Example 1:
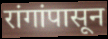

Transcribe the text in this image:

रांगांपासून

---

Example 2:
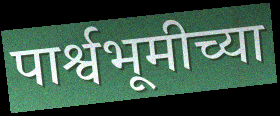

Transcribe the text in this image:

पार्श्वभूमीच्या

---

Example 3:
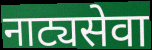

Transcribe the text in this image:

नाट्यसेवा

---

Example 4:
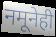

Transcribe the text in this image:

नमूनेही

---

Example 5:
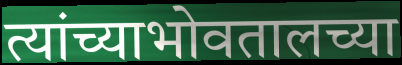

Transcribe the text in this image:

त्यांच्याभोवतालच्या